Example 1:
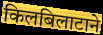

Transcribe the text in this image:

किलबिलाटाने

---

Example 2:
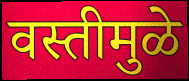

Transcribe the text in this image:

वस्तीमुळे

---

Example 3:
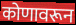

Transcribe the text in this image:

कोणावरून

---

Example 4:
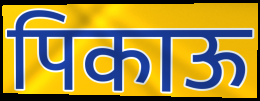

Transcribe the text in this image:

पिकाऊ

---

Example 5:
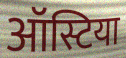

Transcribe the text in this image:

ऑस्टिया